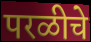
परळीचे